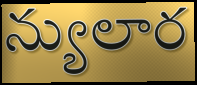
న్యులార